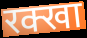
रक्खा